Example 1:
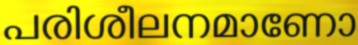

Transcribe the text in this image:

പരിശീലനമാണോ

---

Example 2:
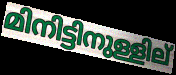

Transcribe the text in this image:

മിനിട്ടിനുള്ളില്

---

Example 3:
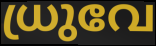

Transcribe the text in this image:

ധ്രുവേ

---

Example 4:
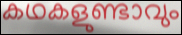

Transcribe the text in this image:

കഥകളുണ്ടാവും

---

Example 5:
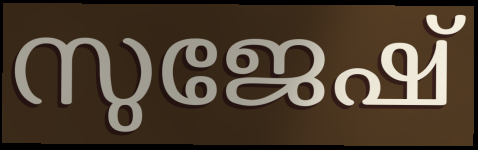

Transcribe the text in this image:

സുജേഷ്